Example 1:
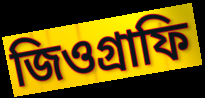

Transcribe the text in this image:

জিওগ্রাফি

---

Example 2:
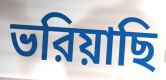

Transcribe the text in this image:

ভরিয়াছি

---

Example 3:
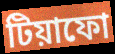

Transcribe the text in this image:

টিয়াফো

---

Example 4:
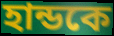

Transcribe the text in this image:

হান্ডকে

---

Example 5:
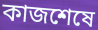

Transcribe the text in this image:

কাজশেষে